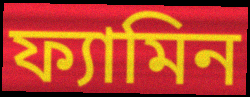
ফ্যামিন